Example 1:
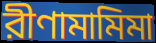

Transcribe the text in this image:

রীণামামিমা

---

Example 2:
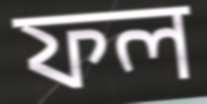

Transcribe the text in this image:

ফল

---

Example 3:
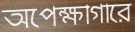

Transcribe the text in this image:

অপেক্ষাগারে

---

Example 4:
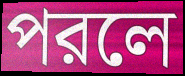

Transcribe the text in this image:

পরলে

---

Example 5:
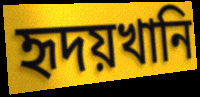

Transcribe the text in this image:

হৃদয়খানি